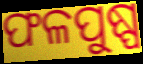
ଫଳପୁଷ୍ପ